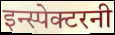
इन्स्पेक्टरनी